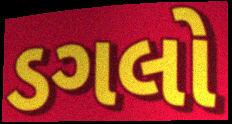
ડગલો